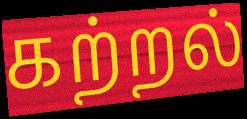
கற்றல்